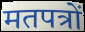
मतपत्रों